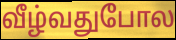
வீழ்வதுபோல